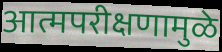
आत्मपरीक्षणामुळे